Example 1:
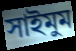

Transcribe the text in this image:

সাইমুম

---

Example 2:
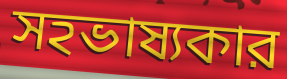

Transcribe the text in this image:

সহভাষ্যকার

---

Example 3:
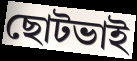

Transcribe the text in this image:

ছোটভাই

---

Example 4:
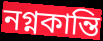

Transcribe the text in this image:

নগ্নকান্তি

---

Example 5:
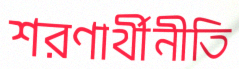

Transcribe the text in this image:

শরণার্থীনীতি